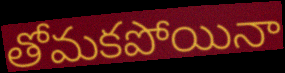
తోమకపోయినా